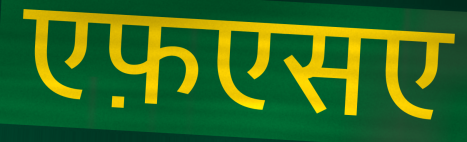
एफ़एसए